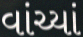
વાંચ્યાં